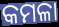
କମଳା